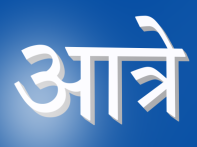
आत्रे